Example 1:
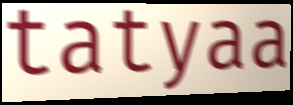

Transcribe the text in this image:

tatyaa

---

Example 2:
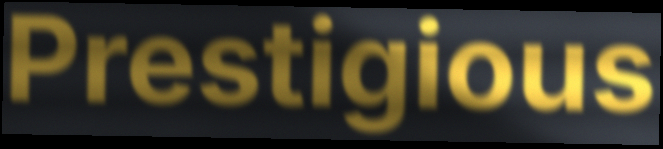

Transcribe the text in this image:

Prestigious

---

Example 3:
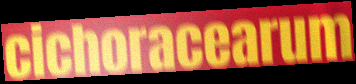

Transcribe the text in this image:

cichoracearum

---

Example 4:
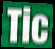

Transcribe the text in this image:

Tic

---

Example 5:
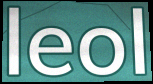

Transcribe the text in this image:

leol